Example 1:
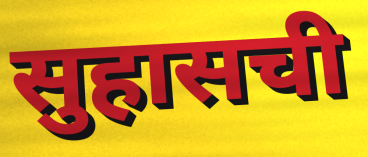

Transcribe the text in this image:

सुहासची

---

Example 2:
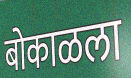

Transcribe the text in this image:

बोकाळला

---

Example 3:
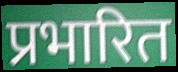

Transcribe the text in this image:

प्रभारित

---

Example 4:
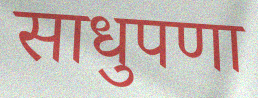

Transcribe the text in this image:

साधुपणा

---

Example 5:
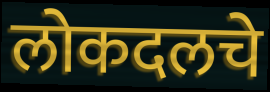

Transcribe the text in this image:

लोकदलचे